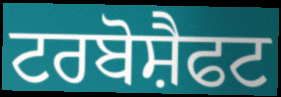
ਟਰਬੋਸ਼ੈਫਟ